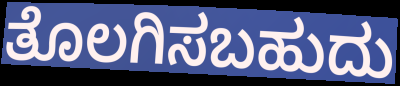
ತೊಲಗಿಸಬಹುದು